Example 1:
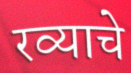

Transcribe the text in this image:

रव्याचे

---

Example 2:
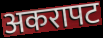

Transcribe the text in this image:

अकरापट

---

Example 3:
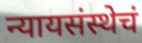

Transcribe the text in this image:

न्यायसंस्थेचं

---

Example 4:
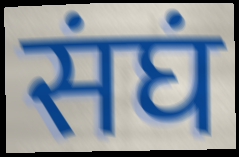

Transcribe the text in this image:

संघं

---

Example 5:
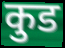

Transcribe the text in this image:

कुड